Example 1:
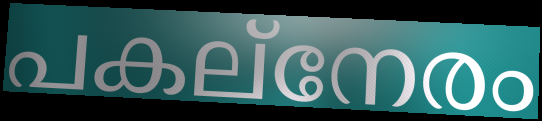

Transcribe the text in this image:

പകല്നേരം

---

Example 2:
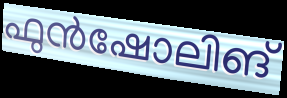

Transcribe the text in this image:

ഫുൻഷോലിങ്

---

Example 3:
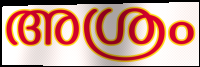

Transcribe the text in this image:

അശ്രം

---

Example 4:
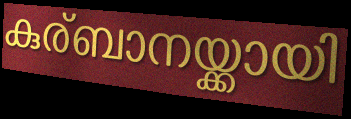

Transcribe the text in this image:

കുര്ബാനയ്ക്കായി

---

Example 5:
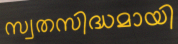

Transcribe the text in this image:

സ്വതസിദ്ധമായി